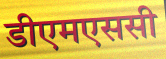
डीएमएससी